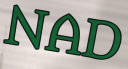
NAD